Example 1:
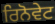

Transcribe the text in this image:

ਰਿਨੋਵੇਟ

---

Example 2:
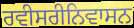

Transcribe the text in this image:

ਰਵੀਸਰੀਨਿਵਾਸਨ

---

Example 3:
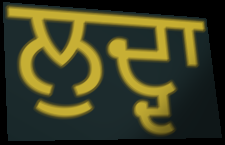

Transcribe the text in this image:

ਲੁਦ੍ਦਾ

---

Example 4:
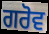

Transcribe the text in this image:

ਗਰੋਵ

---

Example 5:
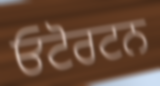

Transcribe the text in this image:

ਓਟੋਰਟਨ